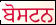
ਬੋਸਟਨ